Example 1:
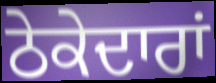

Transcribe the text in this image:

ਠੇਕੇਦਾਰਾਂ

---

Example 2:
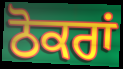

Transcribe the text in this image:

ਠੋਕਰਾਂ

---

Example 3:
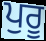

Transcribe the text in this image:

ਪੁਰੂ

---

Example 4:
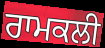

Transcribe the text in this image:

ਰਾਮਕਲੀ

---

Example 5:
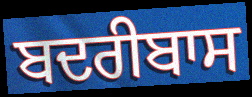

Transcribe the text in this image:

ਬਦਰੀਬਾਸ